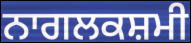
ਨਾਗਲਕਸ਼ਮੀ